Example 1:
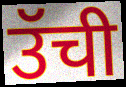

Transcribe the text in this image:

उॅची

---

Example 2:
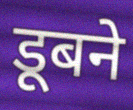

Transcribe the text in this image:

डूबने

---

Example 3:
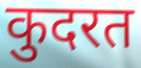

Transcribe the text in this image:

कुदरत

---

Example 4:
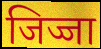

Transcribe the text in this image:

जिज्जा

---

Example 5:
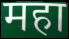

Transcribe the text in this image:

महा